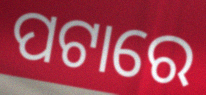
ପଟାରେ